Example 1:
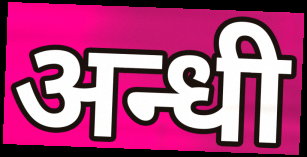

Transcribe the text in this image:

अन्धी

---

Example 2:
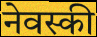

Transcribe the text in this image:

नेवस्की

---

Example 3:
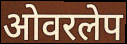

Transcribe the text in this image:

ओवरलेप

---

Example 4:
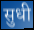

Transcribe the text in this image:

सुधी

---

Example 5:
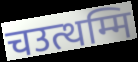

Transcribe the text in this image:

चउत्थम्मि